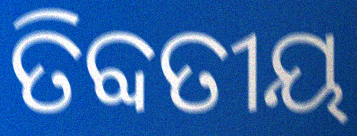
ତିବ୍ଦତୀୟ